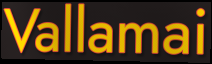
Vallamai